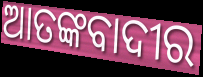
ଆତଙ୍କବାଦୀର